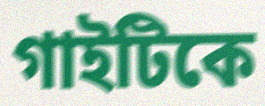
গাইটিকে